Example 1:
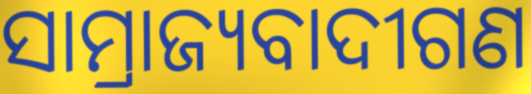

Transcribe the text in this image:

ସାମ୍ରାଜ୍ୟବାଦୀଗଣ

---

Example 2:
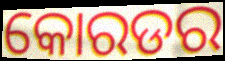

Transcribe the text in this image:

କୋରଡର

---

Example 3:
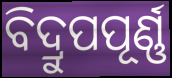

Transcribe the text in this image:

ବିଦ୍ରୁପପୂର୍ଣ୍ଣ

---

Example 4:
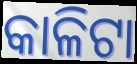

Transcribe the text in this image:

କାଳିଟା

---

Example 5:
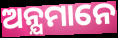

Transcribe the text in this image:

ଅନ୍ଯମାନେ